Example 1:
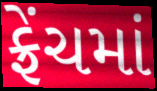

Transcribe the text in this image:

ફ્રેંચમાં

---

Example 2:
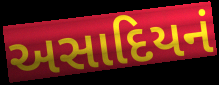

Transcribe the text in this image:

અસાદિયનં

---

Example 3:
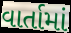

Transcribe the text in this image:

વાર્તામાં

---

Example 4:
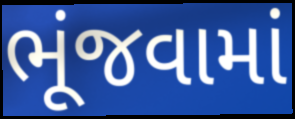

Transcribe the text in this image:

ભૂંજવામાં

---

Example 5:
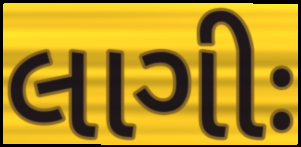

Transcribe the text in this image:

લાગીઃ